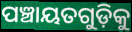
ପଞ୍ଚାୟତଗୁଡ଼ିକୁ